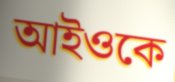
আইওকে